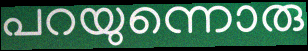
പറയുന്നൊരു